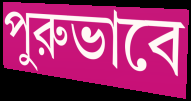
পুরুভাবে